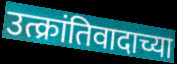
उत्क्रांतिवादाच्या